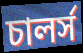
চালর্স